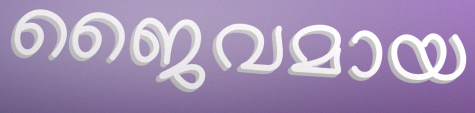
ജൈവമായ